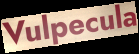
Vulpecula